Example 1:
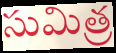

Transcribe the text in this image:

సుమిత్ర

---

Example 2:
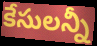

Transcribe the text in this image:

కేసులన్నీ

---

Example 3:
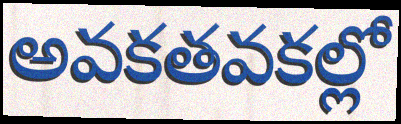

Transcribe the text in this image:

అవకతవకల్లో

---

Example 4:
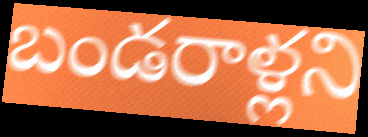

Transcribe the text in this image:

బండరాళ్లని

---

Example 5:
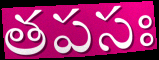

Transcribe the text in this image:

తపసః